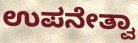
ಉಪನೇತ್ವಾ